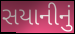
સયાનીનું